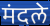
मंदले